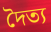
দৈত্য